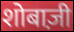
शोबाज़ी